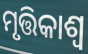
ମୃତ୍ତିକାଶ୍ୱ